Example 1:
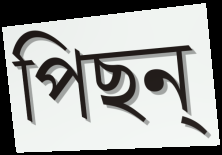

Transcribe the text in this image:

পিছন্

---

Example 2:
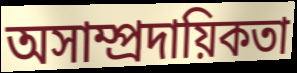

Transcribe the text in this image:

অসাম্প্রদায়িকতা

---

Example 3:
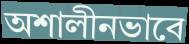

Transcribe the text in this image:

অশালীনভাবে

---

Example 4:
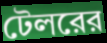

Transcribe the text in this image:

টেলরের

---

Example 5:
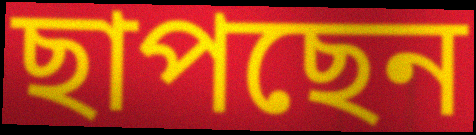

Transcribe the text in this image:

ছাপছেন